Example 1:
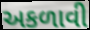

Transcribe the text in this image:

અકળાવી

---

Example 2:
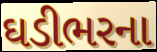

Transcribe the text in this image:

ઘડીભરના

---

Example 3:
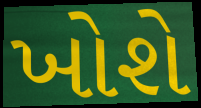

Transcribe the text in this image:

ખોશે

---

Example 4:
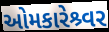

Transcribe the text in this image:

ઓમકારેશ્ર્વર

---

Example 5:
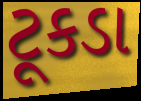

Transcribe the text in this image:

ટૂકડા